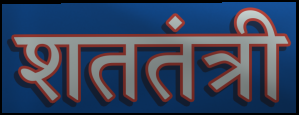
शततंत्री